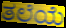
ತಲೆಯೆ